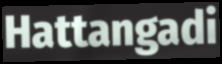
Hattangadi